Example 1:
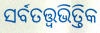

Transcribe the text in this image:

ସର୍ବତତ୍ତ୍ୱଭିତ୍ତିକ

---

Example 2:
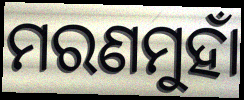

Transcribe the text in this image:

ମରଣମୁହାଁ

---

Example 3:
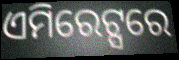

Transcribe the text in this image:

ଏମିରେଟ୍ସରେ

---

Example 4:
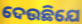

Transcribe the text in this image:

ଦେଉଛିଯେ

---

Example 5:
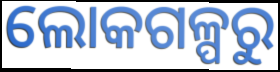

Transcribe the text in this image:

ଲୋକଗଳ୍ପରୁ